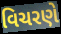
વિચરણે